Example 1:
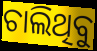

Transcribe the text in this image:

ଚାଲିଥିବୁ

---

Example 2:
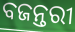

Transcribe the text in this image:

ବଜନ୍ତରୀ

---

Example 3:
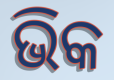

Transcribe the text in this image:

ଭିକ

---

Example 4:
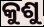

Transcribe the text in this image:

କୁଶୁ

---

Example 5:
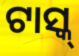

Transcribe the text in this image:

ଟାସ୍କ୍